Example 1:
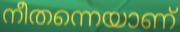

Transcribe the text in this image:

നീതന്നെയാണ്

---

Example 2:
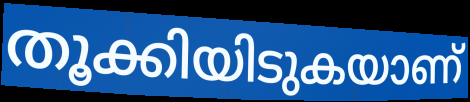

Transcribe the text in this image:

തൂക്കിയിടുകയാണ്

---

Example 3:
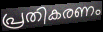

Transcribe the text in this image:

പ്രതികരണം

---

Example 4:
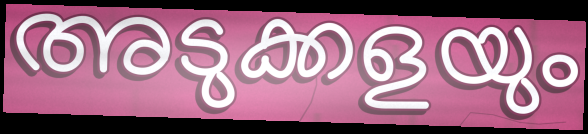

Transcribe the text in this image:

അടുക്കളയും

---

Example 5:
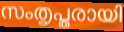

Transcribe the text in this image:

സംതൃപ്തരായി